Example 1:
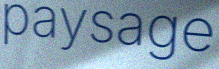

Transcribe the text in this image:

paysage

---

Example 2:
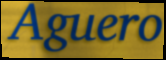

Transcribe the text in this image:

Aguero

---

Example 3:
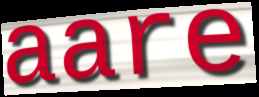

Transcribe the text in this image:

aare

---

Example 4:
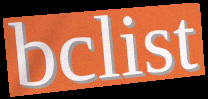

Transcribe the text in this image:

bclist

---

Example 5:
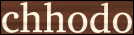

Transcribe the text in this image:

chhodo